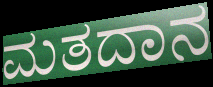
ಮತದಾನ